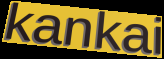
kankai